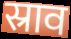
स्राव